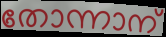
തോന്നാന്